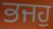
ਭਜਹੁ